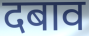
दबाव